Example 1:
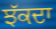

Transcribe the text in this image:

ਝੱਕਦਾ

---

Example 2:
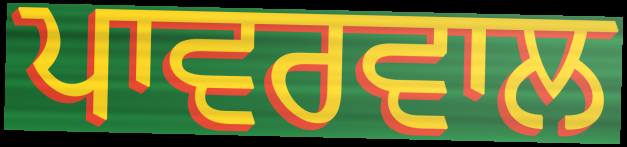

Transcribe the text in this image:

ਪਾਵਰਵਾਲ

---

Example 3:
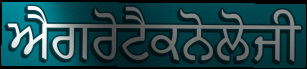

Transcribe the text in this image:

ਐਗਰੋਟੈਕਨੋਲੋਜੀ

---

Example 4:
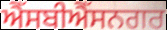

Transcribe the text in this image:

ਐੱਸਬੀਐੱਸਨਗਰ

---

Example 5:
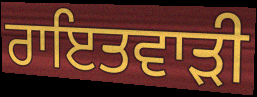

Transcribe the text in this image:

ਰਾਇਤਵਾੜੀ